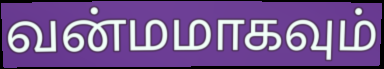
வன்மமாகவும்